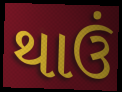
થાઉં